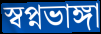
স্বপ্নভাঙ্গা